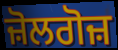
ਜ਼ੋਲਗੋਜ਼